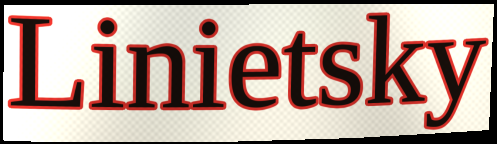
Linietsky